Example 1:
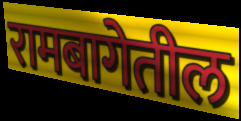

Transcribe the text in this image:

रामबागेतील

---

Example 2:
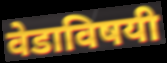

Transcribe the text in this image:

वेडाविषयी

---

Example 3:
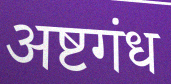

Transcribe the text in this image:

अष्टगंध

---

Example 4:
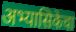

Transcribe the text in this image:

अभ्यासिकेचा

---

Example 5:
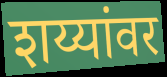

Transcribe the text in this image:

शय्यांवर